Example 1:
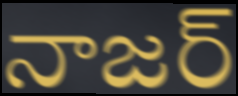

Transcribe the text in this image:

నాజర్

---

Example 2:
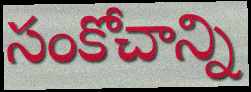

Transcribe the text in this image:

సంకోచాన్ని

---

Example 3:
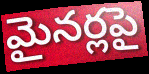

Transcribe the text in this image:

మైనర్లపై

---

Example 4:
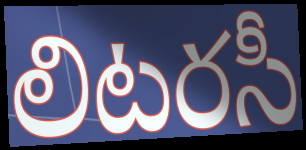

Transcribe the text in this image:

లిటరసీ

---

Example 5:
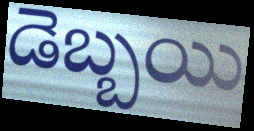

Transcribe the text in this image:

డెబ్బయి